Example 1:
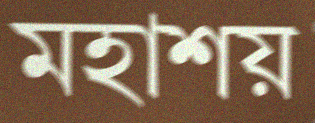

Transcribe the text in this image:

মহাশয়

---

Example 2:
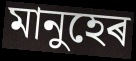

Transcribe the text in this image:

মানুহেৰ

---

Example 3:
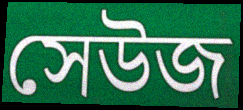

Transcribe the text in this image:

সেউজ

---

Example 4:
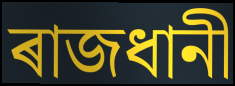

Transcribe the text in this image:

ৰাজধানী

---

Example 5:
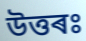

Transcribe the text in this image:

উত্তৰঃ